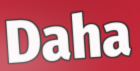
Daha